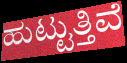
ಹುಟ್ಟುತ್ತಿವೆ